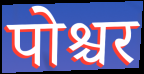
पोश्चर